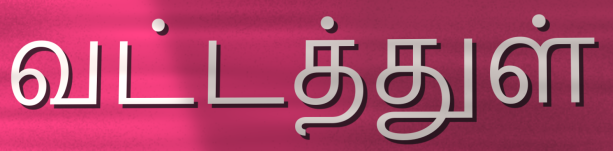
வட்டத்துள்